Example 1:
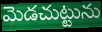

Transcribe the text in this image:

మెడచుట్టును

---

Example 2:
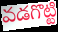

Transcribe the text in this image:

వడగొట్టి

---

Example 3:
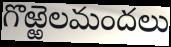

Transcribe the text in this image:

గొఱ్ఱెలమందలు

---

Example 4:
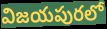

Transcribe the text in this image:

విజయపురలో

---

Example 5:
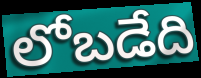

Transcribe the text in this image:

లోబడేది